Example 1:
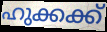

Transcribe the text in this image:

ഹുക്കക്ക്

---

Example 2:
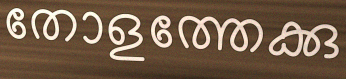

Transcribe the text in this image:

തോളത്തേക്കു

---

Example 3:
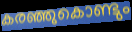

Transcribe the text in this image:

കരഞ്ഞുകൊണ്ടും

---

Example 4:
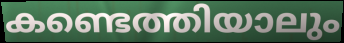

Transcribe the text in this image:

കണ്ടെത്തിയാലും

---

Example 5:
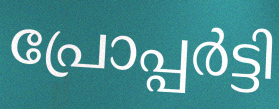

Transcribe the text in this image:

പ്രോപ്പർട്ടി